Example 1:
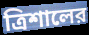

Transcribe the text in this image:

ত্রিশালের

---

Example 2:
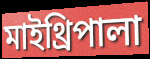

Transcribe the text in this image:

মাইথ্রিপালা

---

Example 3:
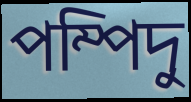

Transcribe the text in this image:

পম্পিদু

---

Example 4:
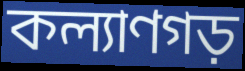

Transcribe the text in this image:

কল্যাণগড়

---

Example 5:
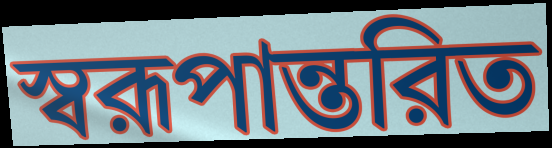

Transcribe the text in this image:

স্বরূপান্তরিত